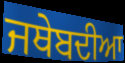
ਜਥੇਬਦੀਆ